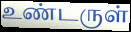
உண்டருள்